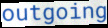
outgoing